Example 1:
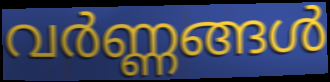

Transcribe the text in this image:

വർണ്ണങ്ങൾ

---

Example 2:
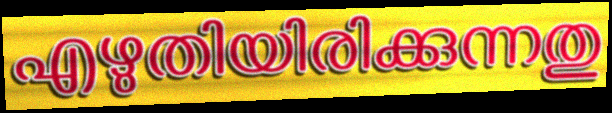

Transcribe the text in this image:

എഴുതിയിരിക്കുന്നതു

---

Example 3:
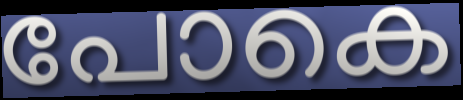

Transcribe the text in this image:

പോകെ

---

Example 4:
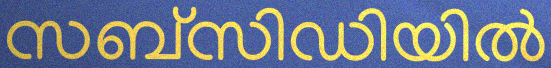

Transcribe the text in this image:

സബ്സിഡിയിൽ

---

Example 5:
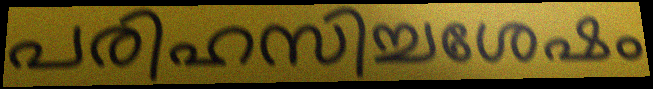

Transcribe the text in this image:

പരിഹസിച്ചശേഷം